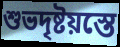
শুভদৃষ্টয়স্তে